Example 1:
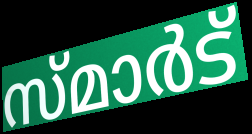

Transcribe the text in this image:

സ്മാർട്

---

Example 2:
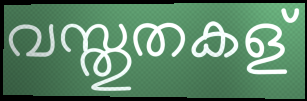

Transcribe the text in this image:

വസ്തുതകള്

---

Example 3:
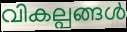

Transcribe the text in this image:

വികല്പങ്ങൾ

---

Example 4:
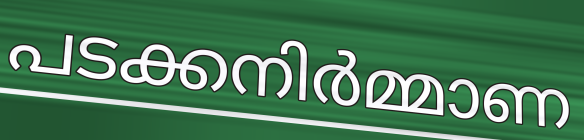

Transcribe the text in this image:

പടക്കനിർമ്മാണ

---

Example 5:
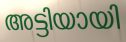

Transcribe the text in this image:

അട്ടിയായി